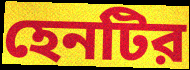
হেনটির